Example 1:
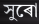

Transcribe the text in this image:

সুৰো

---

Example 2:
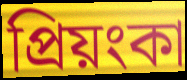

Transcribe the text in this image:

প্ৰিয়ংকা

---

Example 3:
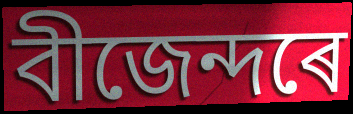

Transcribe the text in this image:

বীজেন্দৰে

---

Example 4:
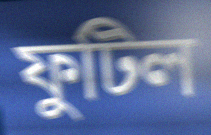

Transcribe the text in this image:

ফুটিল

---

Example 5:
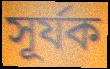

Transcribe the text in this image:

সূৰ্যক